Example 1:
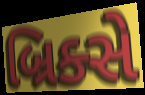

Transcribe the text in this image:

બ્રિક્સે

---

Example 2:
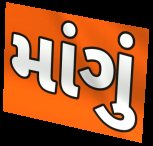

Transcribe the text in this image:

માંગું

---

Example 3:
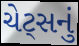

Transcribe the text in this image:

ચેટ્સનું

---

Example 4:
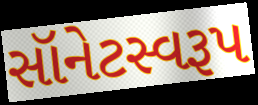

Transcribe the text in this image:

સૉનેટસ્વરૂપ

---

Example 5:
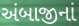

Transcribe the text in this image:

અંબાજીનાં